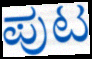
ಪುಟ